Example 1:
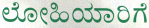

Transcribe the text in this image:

ಲೋಹಿಯಾರಿಗೆ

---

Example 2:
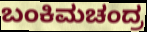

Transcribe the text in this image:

ಬಂಕಿಮಚಂದ್ರ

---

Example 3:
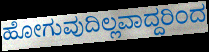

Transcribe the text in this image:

ಹೋಗುವುದಿಲ್ಲವಾದ್ದರಿಂದ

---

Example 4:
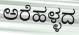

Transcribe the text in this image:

ಅರೆಹಳ್ಳದ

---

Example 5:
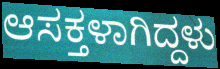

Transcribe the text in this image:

ಆಸಕ್ತಳಾಗಿದ್ದಳು